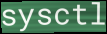
sysctl